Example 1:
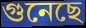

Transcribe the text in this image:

গুনেছে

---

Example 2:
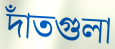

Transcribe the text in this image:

দাঁতগুলা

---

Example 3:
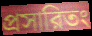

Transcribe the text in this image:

প্রসারিতং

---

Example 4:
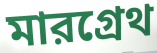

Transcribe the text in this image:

মারগ্রেথ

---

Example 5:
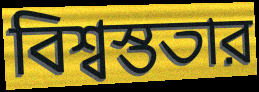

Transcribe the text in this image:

বিশ্বস্ততার